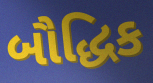
બૌદ્ધિક